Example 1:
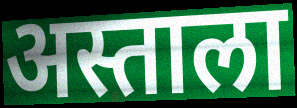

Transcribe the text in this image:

अस्ताला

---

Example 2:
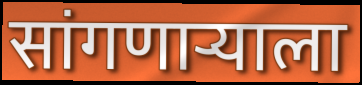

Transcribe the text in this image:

सांगणार्‍याला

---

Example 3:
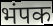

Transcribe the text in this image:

भंपक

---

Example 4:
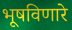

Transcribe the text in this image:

भूषविणारे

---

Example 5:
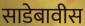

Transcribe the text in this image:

साडेबावीस